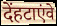
देंहटाएंवे